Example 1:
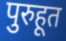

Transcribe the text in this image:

पुरुहूत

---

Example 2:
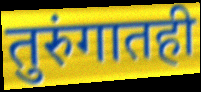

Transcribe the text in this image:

तुरुंगातही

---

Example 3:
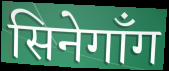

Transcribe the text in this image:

सिनेगाँग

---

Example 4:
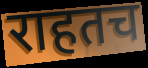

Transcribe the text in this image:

राहतच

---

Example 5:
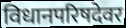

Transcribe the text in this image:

विधानपरिषदेवर